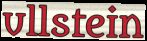
ullstein